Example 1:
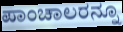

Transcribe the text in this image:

ಪಾಂಚಾಲರನ್ನೂ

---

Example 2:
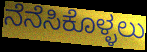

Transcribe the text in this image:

ನೆನೆಸಿಕೊಳ್ಳಲು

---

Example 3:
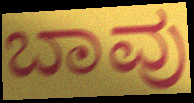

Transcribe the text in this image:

ಬಾವು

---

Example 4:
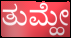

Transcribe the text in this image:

ತುಮ್ಹೇ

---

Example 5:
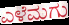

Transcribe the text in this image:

ಎಳೆಮಗು